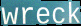
wreck